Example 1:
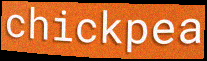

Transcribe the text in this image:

chickpea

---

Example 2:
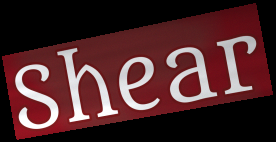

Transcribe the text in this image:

Shear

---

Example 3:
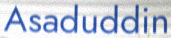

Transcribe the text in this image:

Asaduddin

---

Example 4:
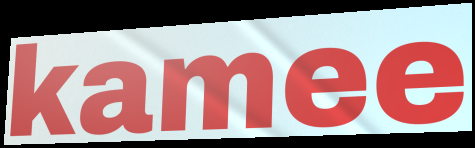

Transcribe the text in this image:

kamee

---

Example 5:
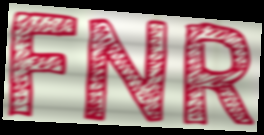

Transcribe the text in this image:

FNR